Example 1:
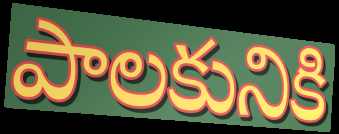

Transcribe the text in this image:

పాలకునికి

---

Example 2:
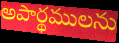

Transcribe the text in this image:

అపార్థములను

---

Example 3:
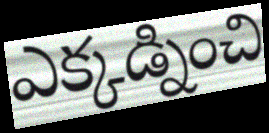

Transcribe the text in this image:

ఎక్కడ్నించి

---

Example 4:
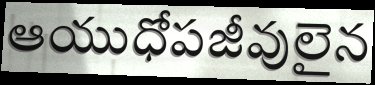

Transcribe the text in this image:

ఆయుధోపజీవులైన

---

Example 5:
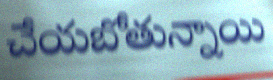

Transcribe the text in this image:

చేయబోతున్నాయి